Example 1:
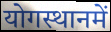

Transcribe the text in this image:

योगस्थानमें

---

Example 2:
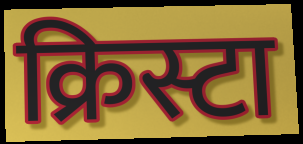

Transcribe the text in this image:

क्रिस्टा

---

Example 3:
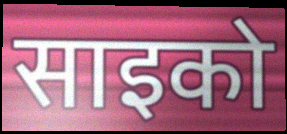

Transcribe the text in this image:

साइको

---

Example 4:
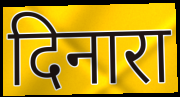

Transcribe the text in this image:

दिनारा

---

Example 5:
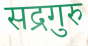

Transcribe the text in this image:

सद्रगुरु